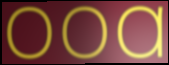
ooa